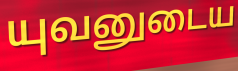
யுவனுடைய